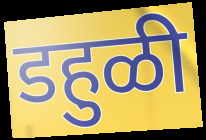
डहुळी